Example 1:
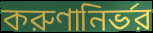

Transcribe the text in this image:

করুণানির্ভর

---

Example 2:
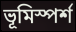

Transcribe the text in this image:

ভূমিস্পর্শ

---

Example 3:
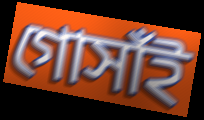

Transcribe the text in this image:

গোসাঁই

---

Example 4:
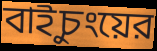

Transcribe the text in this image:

বাইচুংয়ের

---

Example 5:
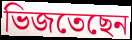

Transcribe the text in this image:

ভিজতেছেন